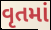
વૃતમાં